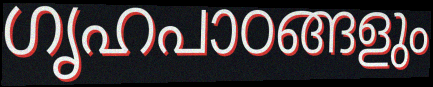
ഗൃഹപാഠങ്ങളും